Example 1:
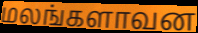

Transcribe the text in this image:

மலங்களாவன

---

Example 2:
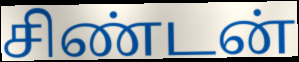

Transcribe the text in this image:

சிண்டன்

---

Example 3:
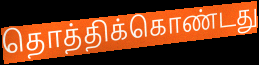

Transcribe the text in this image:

தொத்திக்கொண்டது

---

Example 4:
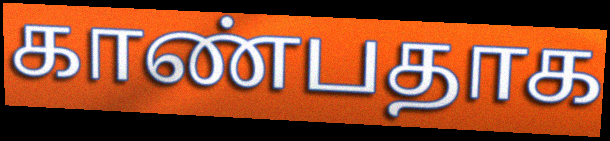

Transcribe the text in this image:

காண்பதாக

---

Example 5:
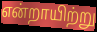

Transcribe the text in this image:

என்றாயிற்று